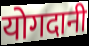
योगदानी